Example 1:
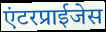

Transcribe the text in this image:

एंटरप्राईजेस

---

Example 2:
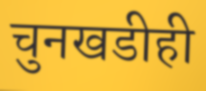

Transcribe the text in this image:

चुनखडीही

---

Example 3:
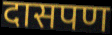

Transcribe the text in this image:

दासपण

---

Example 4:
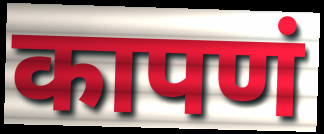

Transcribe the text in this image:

कापणं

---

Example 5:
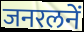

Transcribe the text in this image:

जनरलनें